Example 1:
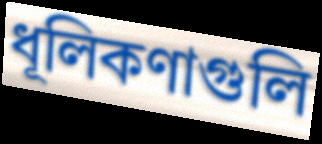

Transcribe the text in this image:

ধূলিকণাগুলি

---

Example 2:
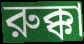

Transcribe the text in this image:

রুক্কা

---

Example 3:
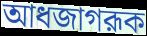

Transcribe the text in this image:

আধজাগরূক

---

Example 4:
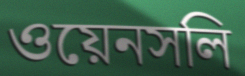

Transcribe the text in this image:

ওয়েনসলি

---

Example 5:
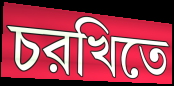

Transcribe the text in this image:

চরখিতে